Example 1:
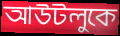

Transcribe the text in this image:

আউটলুকে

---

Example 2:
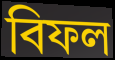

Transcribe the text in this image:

বিফল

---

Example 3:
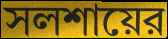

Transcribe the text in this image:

সলশায়ের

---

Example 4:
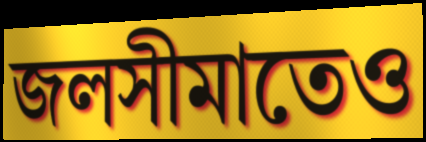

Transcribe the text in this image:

জলসীমাতেও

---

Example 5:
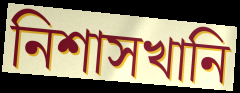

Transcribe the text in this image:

নিশাসখানি